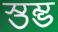
স্তম্ভ